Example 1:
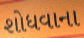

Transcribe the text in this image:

શોધવાના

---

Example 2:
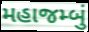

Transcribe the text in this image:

મહાજમ્બું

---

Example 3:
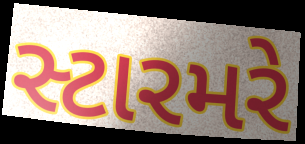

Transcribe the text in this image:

સ્ટારમરે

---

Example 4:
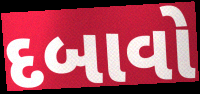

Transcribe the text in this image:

દબાવો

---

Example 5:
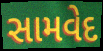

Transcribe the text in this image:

સામવેદ